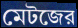
মেটজের